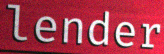
lender